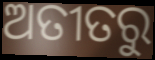
ଅତୀତରୁ